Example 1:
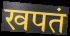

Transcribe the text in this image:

खपतं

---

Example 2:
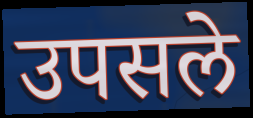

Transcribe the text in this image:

उपसले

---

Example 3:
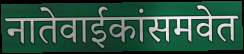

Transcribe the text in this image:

नातेवाईकांसमवेत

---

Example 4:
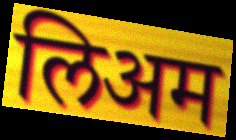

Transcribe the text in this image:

लिअम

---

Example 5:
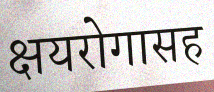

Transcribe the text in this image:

क्षयरोगासह